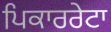
ਪਿਕਾਰਰੇਟਾ